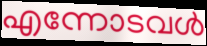
എന്നോടവൾ